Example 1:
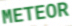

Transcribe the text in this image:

METEOR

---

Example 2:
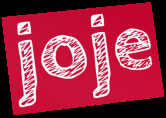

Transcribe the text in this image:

joje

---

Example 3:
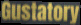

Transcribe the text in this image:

Gustatory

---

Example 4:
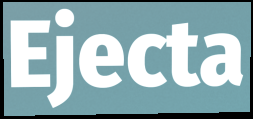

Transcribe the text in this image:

Ejecta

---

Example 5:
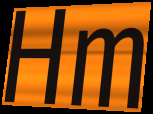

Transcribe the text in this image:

Hm